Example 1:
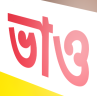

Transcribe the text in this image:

ভাও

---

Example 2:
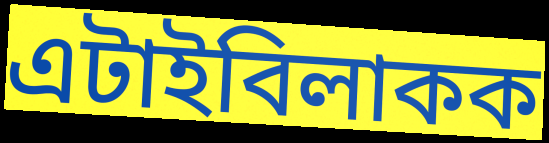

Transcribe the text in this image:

এটাইবিলাকক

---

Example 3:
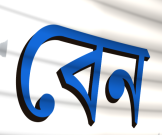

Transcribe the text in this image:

বেন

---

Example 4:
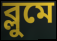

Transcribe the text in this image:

ব্লুমে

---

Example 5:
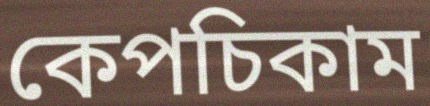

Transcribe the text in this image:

কেপচিকাম